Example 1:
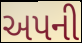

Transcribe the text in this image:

અપની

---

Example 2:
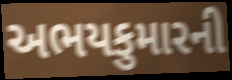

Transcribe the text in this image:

અભયકુમારની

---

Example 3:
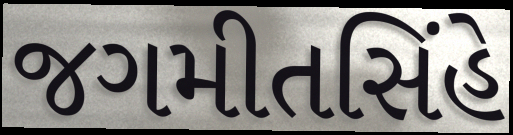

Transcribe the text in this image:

જગમીતસિંહે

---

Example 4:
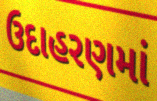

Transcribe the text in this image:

ઉદાહરણમાં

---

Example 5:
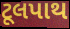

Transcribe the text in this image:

ટૂલપાથ